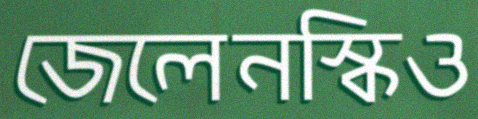
জেলেনস্কিও